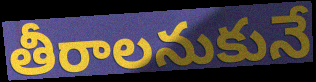
తీరాలనుకునే